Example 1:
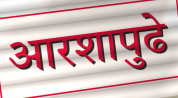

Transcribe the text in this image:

आरशापुढे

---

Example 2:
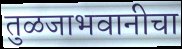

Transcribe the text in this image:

तुळजाभवानीचा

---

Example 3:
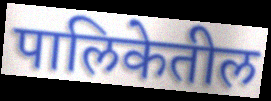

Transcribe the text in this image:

पालिकेतील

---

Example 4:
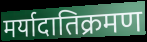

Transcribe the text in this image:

मर्यादातिक्रमण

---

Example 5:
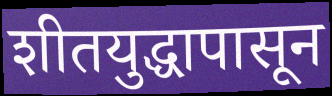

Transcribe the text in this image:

शीतयुद्धापासून